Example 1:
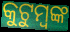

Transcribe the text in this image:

କୁଟୁମ୍ବଙ୍କ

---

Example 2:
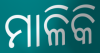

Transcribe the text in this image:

ମାଳିକି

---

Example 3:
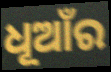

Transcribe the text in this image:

ଧୂଆଁର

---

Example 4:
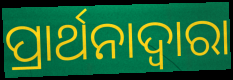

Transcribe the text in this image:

ପ୍ରାର୍ଥନାଦ୍ଵାରା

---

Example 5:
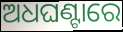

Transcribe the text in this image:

ଅଧଘଣ୍ଟାରେ